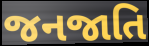
જનજાતિ